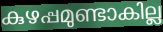
കുഴപ്പമുണ്ടാകില്ല